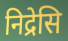
निद्रेसि